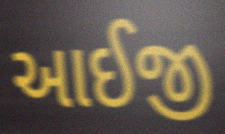
આઈજી